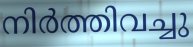
നിർത്തിവച്ചു